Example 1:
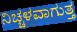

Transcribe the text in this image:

ನಿಚ್ಚಳವಾಗುತ್ತ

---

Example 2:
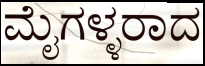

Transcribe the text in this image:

ಮೈಗಳ್ಳರಾದ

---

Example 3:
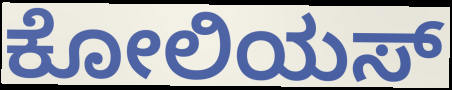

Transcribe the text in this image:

ಕೋಲಿಯಸ್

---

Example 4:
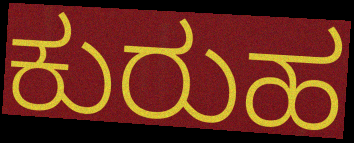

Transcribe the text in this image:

ಕುರುಹ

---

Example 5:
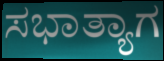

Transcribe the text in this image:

ಸಭಾತ್ಯಾಗ